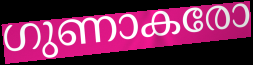
ഗുണാകരോ